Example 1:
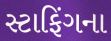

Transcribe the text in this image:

સ્ટાફિંગના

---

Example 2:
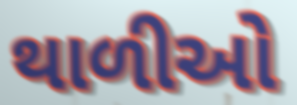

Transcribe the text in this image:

થાળીઓ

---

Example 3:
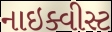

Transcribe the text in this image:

નાઇક્વીસ્ટ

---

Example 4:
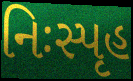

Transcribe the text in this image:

નિઃસ્પૃહ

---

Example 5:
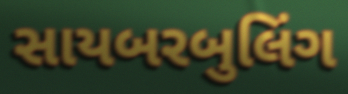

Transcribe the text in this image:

સાયબરબુલિંગ